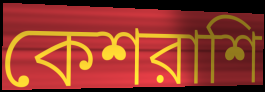
কেশরাশি